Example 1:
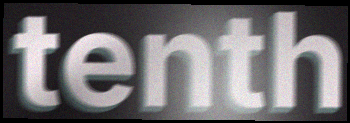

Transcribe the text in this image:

tenth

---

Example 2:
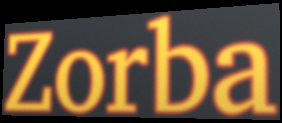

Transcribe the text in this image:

Zorba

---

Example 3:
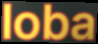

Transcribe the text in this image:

loba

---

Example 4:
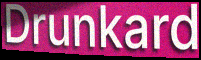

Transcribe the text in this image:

Drunkard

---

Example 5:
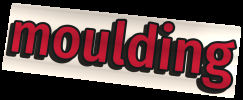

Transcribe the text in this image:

moulding